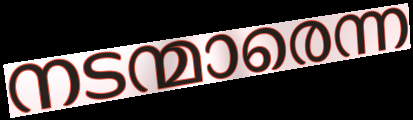
നടന്മാരെന്ന